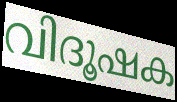
വിദൂഷക